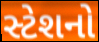
સ્ટેશનો